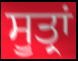
ਸੂਤ੍ਰਾਂ